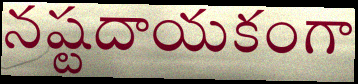
నష్టదాయకంగా